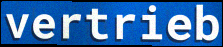
vertrieb